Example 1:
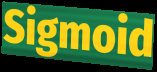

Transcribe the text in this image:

Sigmoid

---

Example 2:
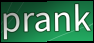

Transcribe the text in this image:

prank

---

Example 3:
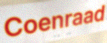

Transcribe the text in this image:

Coenraad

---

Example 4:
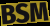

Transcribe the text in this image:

BSM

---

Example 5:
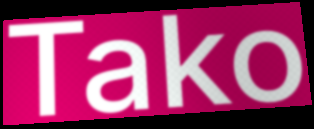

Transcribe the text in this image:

Tako